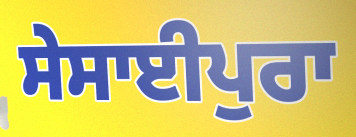
ਸੇਸਾਈਪੁਰਾ